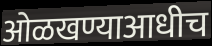
ओळखण्याआधीच